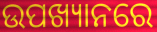
ଉପଖ୍ୟାନରେ